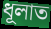
ধূলাত